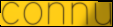
connu